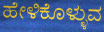
ಹೇಳಿಕೊಳ್ಳುವ